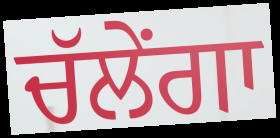
ਚੱਲੇਂਗਾ